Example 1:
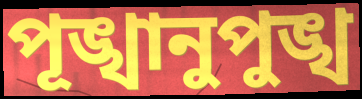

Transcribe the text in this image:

পূঙ্খানুপুঙ্খ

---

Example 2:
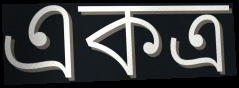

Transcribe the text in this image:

একত্র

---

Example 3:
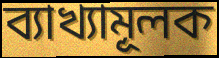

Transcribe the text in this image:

ব্যাখ্যামূলক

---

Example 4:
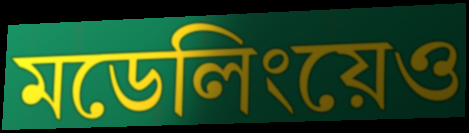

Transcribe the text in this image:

মডেলিংয়েও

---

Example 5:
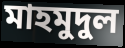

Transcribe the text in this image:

মাহমুদুল